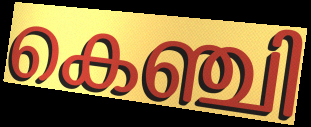
കെഞ്ചി